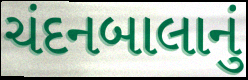
ચંદનબાલાનું